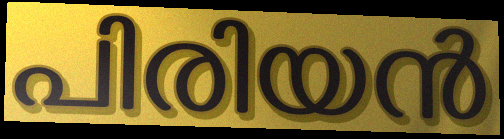
പിരിയൻ